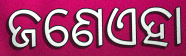
ଜଣେଏହା